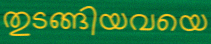
തുടങ്ങിയവയെ